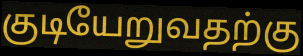
குடியேறுவதற்கு